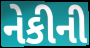
નેકીની